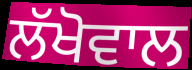
ਲੱਖੋਵਾਲ